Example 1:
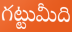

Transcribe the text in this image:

గట్టుమీది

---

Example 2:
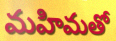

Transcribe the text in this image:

మహిమతో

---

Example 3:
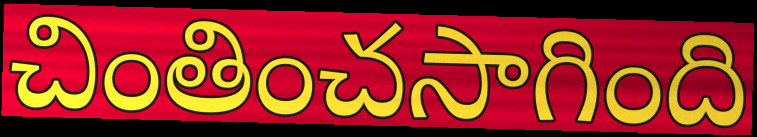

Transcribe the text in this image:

చింతించసాగింది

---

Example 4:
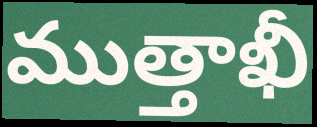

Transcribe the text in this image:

ముత్తాఖీ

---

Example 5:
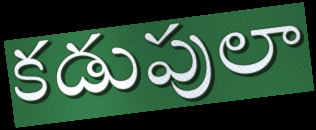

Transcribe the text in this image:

కడుపులా